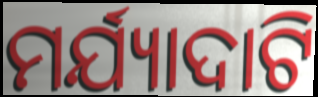
ମର୍ଯ୍ୟାଦାଟି